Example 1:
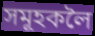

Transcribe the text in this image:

সমূহকলৈ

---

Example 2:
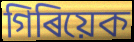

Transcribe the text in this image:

গিৰিয়েক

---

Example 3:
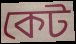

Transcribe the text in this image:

কেট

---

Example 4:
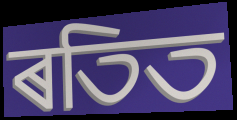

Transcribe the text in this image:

ৰতিত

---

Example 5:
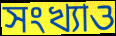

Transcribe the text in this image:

সংখ্যাও